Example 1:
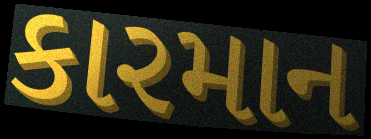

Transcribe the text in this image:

કારમાન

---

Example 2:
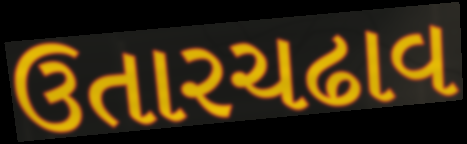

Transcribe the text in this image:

ઉતારચઢાવ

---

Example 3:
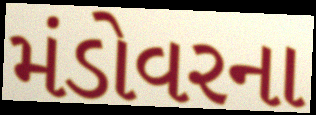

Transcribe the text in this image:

મંડોવરના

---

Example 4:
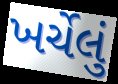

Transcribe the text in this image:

ખર્ચેલું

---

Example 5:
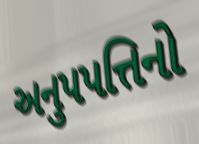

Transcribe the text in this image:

અનુપપત્તિનો